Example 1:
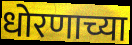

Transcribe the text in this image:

धोरणाच्या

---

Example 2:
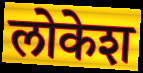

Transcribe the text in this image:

लोकेश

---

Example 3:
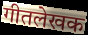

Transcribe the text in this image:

गीतलेखक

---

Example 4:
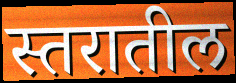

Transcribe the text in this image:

स्तरातील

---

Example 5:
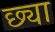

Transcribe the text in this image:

छ्या